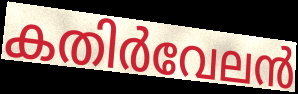
കതിർവേലൻ